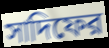
সাদিফের